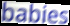
babies